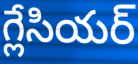
గ్లేసియర్